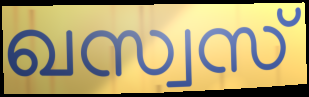
ഖസ്വസ്